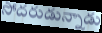
సోదరుడున్నాడు